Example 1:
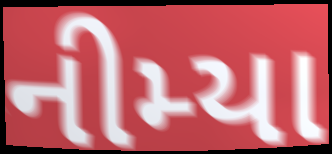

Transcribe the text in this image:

નીમ્યા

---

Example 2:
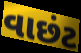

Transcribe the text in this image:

વાછંટ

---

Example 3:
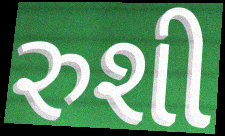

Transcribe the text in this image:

રુશી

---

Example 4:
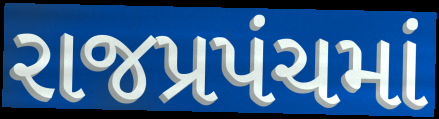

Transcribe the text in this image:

રાજપ્રપંચમાં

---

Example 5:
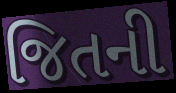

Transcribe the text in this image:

જિતની